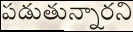
పడుతున్నారని